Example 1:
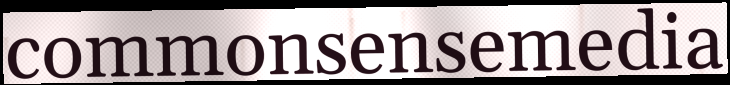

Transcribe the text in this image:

commonsensemedia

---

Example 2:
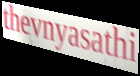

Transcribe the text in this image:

thevnyasathi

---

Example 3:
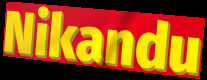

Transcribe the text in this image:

Nikandu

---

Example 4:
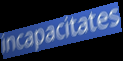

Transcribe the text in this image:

incapacitates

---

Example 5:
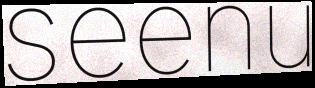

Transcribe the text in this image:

seenu